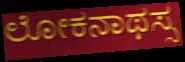
ಲೋಕನಾಥಸ್ಸ